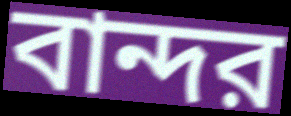
বান্দর